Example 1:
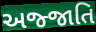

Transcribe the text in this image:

અજ્જાતિ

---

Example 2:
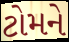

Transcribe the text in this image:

ટોમને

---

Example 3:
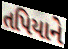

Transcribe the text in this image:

તપિયાને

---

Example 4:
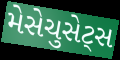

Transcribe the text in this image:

મેસેચુસેટ્સ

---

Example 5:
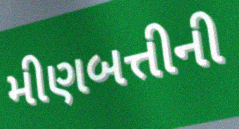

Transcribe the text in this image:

મીણબત્તીની